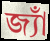
জ্যাঁ